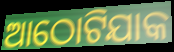
ଆଠୋଟିଯାକ